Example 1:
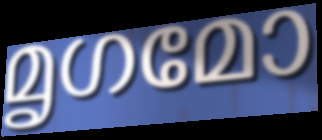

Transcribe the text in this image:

മൃഗമോ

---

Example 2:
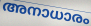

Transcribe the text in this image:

അനാധാരം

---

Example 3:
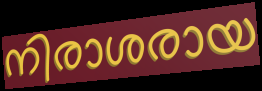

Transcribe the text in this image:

നിരാശരായ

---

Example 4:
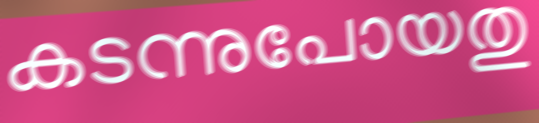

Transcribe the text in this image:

കടന്നുപോയതു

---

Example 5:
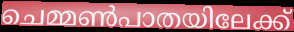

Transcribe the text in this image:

ചെമ്മൺപാതയിലേക്ക്